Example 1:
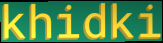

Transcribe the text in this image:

khidki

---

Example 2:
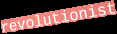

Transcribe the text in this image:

revolutionist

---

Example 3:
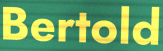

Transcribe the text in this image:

Bertold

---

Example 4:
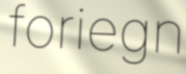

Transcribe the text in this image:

foriegn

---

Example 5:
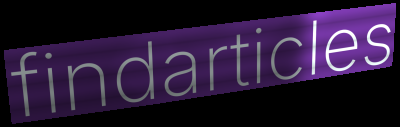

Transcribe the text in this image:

findarticles